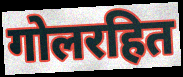
गोलरहित